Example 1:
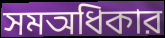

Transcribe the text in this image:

সমঅধিকার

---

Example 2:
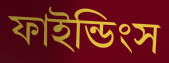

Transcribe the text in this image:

ফাইন্ডিংস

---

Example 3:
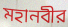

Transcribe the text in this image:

মহানবীর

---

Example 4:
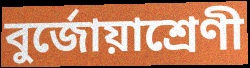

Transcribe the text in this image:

বুর্জোয়াশ্রেণী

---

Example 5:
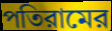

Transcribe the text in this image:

পতিরামের